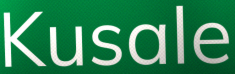
Kusale